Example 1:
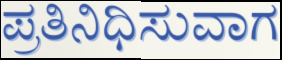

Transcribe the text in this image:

ಪ್ರತಿನಿಧಿಸುವಾಗ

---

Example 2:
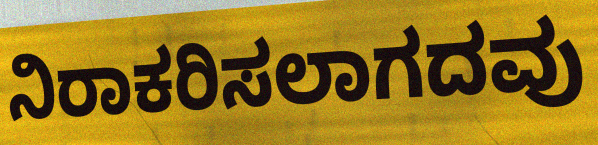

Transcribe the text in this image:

ನಿರಾಕರಿಸಲಾಗದವು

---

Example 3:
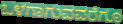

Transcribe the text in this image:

ಒಳಗಾಗುವವರೆಗೂ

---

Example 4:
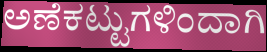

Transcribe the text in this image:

ಅಣೆಕಟ್ಟುಗಳಿಂದಾಗಿ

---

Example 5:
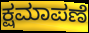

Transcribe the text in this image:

ಕ್ಷಮಾಪಣೆ